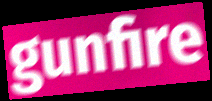
gunfire